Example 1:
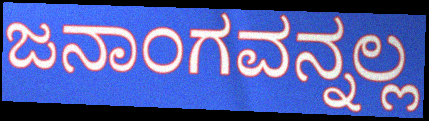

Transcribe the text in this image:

ಜನಾಂಗವನ್ನಲ್ಲ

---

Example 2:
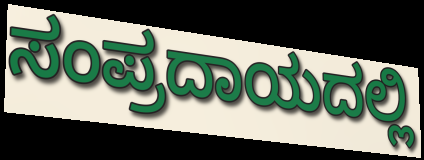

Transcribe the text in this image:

ಸಂಪ್ರದಾಯದಲ್ಲಿ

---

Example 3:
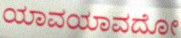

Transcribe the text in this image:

ಯಾವಯಾವದೋ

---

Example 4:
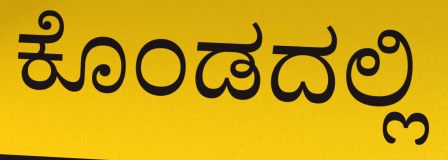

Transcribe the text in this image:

ಕೊಂಡದಲ್ಲಿ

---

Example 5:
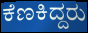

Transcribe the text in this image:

ಕೆಣಕಿದ್ದರು